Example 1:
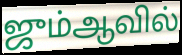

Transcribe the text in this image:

ஜும்ஆவில்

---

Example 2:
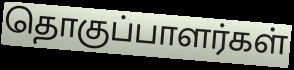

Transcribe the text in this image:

தொகுப்பாளர்கள்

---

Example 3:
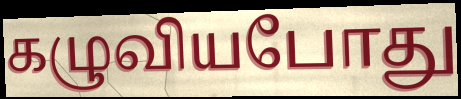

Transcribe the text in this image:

கழுவியபோது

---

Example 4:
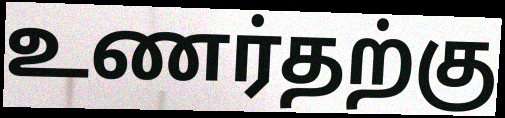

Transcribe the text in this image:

உணர்தற்கு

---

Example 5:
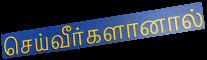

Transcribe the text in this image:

செய்வீர்களானால்